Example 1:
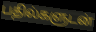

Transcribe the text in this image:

பதில்களுடன்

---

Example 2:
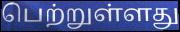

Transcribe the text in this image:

பெற்றுள்ளது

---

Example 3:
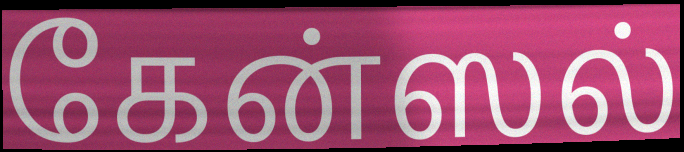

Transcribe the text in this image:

கேன்ஸல்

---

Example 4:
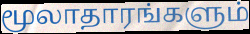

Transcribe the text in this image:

மூலாதாரங்களும்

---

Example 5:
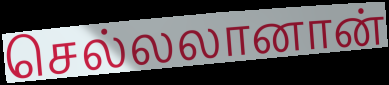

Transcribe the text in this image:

செல்லலானான்